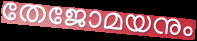
തേജോമയനും